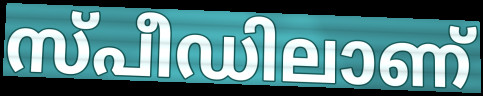
സ്പീഡിലാണ്